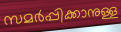
സമർപ്പിക്കാനുള്ള